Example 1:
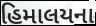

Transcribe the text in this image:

હિમાલયના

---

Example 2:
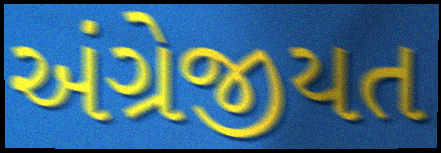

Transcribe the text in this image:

અંગ્રેજીયત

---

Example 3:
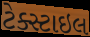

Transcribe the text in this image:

ટેક્સ્ટાઇલ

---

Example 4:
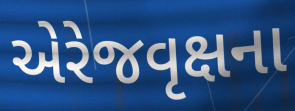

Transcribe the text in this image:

એરેજવૃક્ષના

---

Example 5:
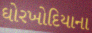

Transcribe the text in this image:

ઘોરખોદિયાના